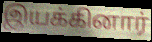
இயக்கினார்